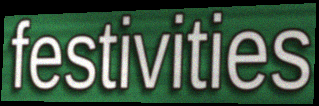
festivities